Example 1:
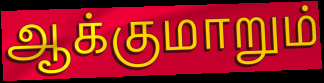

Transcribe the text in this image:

ஆக்குமாறும்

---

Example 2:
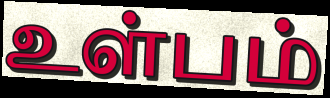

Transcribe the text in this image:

உள்பம்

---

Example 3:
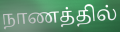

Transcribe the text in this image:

நாணத்தில்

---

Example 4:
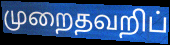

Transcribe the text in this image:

முறைதவறிப்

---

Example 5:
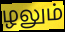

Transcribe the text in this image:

ழலும்